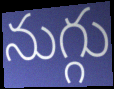
నుగ్గు